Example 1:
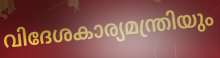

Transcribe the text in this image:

വിദേശകാര്യമന്ത്രിയും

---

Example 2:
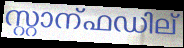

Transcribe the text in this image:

സ്റ്റാന്ഫഡില്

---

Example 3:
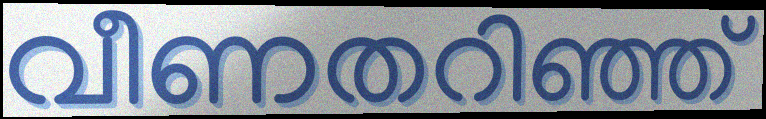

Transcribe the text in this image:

വീണതറിഞ്ഞ്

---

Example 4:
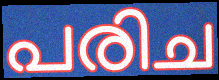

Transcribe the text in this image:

പരിച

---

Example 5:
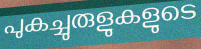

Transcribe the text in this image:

പുകച്ചുരുളുകളുടെ